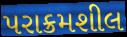
પરાક્રમશીલ